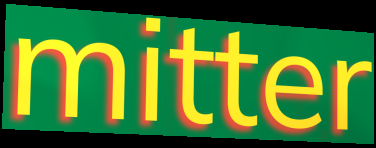
mitter